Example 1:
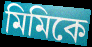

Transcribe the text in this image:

মিমিকে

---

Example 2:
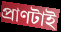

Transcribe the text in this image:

প্রাণটাই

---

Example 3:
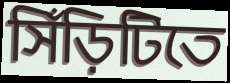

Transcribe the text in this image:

সিঁড়িটিতে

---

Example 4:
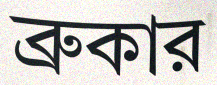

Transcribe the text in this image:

ব্রুকার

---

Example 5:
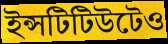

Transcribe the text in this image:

ইন্সটিটিউটেও